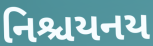
નિશ્ચયનય